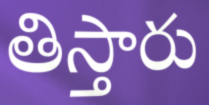
తిస్తారు